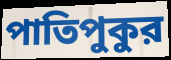
পাতিপুকুর